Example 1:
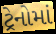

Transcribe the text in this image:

ટ્રેનોમાં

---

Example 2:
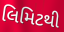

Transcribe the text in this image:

લિમિટથી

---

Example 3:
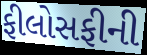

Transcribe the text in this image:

ફીલોસફીની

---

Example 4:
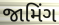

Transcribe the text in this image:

જામિંગ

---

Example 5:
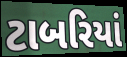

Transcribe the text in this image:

ટાબરિયાં